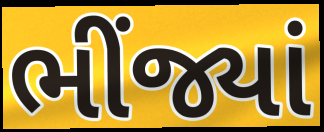
ભીંજ્યાં